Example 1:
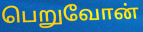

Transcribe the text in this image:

பெறுவோன்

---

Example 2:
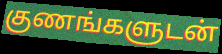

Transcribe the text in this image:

குணங்களுடன்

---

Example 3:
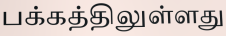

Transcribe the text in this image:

பக்கத்திலுள்ளது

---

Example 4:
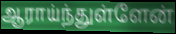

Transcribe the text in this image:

ஆராய்ந்துள்ளேன்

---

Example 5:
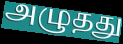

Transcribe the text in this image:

அழுதது